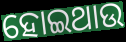
ହୋଇଥାଉ